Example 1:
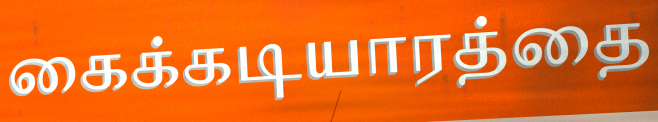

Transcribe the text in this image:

கைக்கடியாரத்தை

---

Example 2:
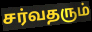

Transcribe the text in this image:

சர்வதரும்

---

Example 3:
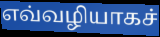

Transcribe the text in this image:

எவ்வழியாகச்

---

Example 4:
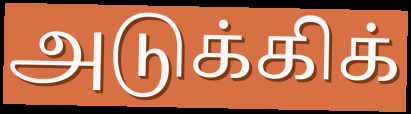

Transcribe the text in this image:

அடுக்கிக்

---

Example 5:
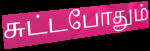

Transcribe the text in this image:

சுட்டபோதும்